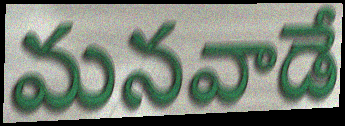
మనవాడే